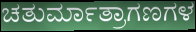
ಚತುರ್ಮಾತ್ರಾಗಣಗಳ